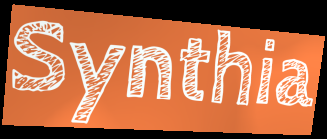
Synthia